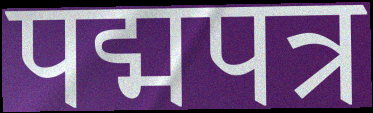
पद्मपत्र